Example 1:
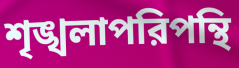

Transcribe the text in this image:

শৃঙ্খলাপরিপন্থি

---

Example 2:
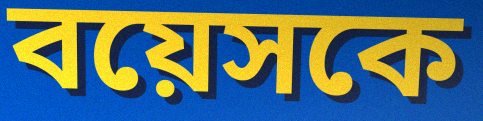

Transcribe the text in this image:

বয়েসকে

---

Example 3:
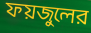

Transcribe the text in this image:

ফয়জুলের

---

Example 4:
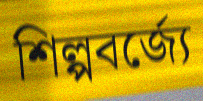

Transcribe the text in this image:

শিল্পবর্জ্যে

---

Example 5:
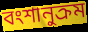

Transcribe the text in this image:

বংশানুক্রম